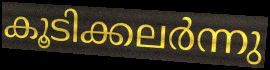
കൂടിക്കലർന്നു